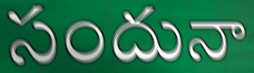
సందునా